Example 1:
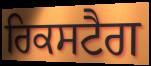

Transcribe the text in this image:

ਰਿਕਸਟੈਗ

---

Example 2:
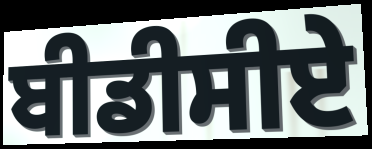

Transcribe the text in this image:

ਬੀਡੀਸੀਏ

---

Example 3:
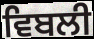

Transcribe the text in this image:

ਵਿਬਲੀ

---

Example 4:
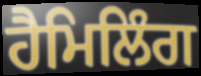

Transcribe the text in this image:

ਹੈਮਿਲਿੰਗ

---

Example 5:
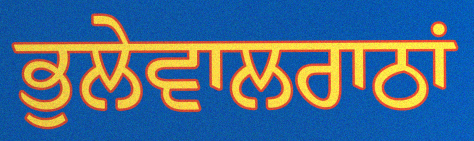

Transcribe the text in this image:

ਭੁਲੇਵਾਲਰਾਠਾਂ